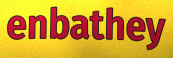
enbathey